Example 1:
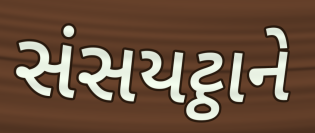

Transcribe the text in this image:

સંસયટ્ઠાને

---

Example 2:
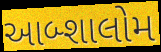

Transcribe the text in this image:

આબ્શાલોમ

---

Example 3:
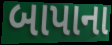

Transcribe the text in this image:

બાપાના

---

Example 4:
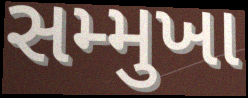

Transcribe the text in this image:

સમ્મુખા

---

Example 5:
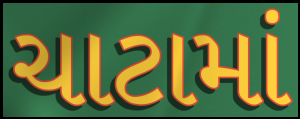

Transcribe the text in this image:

ચાટામાં